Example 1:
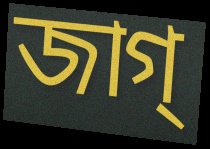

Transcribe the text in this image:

জাগ্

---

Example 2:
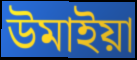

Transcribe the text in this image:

উমাইয়া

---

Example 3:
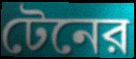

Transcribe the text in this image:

টেনের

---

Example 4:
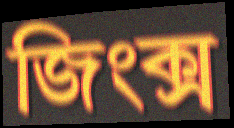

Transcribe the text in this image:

জিংক্স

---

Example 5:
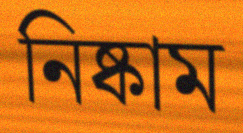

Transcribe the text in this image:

নিষ্কাম